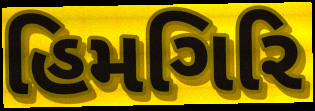
હિમગિરિ